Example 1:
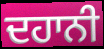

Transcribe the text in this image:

ਦਹਾਨੀ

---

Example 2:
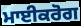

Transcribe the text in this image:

ਮਾਈਕਰੋਗ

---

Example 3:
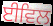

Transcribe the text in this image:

ਈਵਿਲ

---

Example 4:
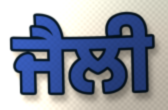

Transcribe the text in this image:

ਜੈਲੀ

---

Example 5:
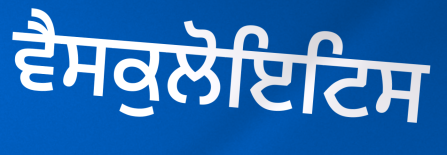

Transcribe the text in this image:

ਵੈਸਕੁਲੋਇਟਿਸ